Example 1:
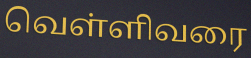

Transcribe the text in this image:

வெள்ளிவரை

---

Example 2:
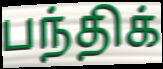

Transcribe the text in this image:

பந்திக்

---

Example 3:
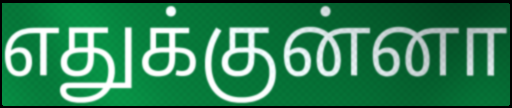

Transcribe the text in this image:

எதுக்குன்னா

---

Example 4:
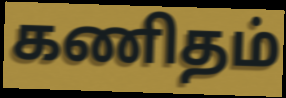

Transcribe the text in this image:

கணிதம்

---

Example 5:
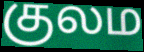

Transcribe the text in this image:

குலம